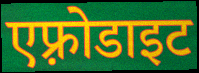
एफ़्रोडाइट